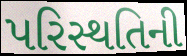
પરિસ્થતિની